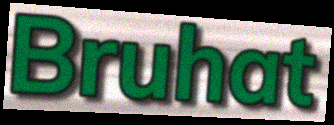
Bruhat